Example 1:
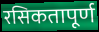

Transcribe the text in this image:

रसिकतापूर्ण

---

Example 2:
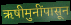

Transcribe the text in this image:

ऋषीमुनींपासून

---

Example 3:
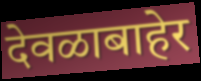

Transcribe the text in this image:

देवळाबाहेर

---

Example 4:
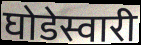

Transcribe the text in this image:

घोडेस्वारी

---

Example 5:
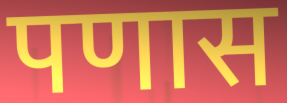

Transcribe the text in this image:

पणास